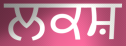
ਲਕਸ਼